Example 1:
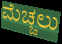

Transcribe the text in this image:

ಮೆಚ್ಚಲು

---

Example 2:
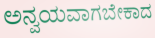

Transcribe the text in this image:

ಅನ್ವಯವಾಗಬೇಕಾದ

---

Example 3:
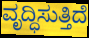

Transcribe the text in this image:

ವೃದ್ಧಿಸುತ್ತಿದೆ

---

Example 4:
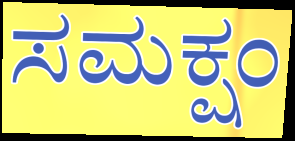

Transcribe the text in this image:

ಸಮಕ್ಷಂ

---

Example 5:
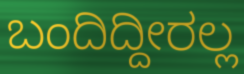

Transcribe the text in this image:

ಬಂದಿದ್ದೀರಲ್ಲ